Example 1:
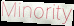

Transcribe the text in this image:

Minority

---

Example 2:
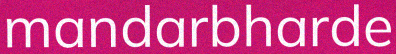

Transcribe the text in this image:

mandarbharde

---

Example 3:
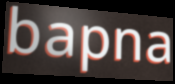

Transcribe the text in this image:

bapna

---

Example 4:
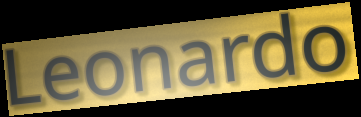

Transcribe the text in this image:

Leonardo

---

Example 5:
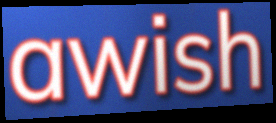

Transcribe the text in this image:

awish